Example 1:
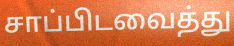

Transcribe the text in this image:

சாப்பிடவைத்து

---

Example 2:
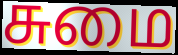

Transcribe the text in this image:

சுமை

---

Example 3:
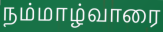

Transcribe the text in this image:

நம்மாழ்வாரை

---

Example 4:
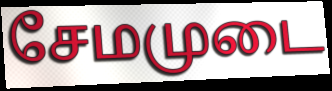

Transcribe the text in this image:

சேமமுடை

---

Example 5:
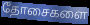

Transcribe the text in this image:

தோசைகளை